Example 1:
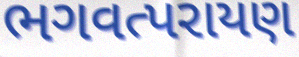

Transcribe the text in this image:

ભગવત્પરાયણ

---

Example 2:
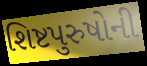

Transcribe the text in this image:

શિષ્ટપુરુષોની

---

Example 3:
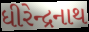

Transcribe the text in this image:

ધીરેન્દ્રનાથ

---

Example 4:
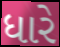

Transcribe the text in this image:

ધારે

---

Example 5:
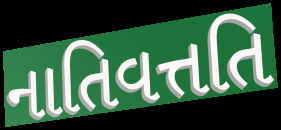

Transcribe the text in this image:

નાતિવત્તતિ